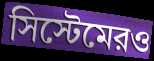
সিস্টেমেরও